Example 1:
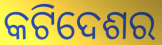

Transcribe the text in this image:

କଟିଦେଶର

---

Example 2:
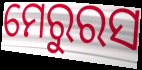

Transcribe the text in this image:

ମେରୁରସ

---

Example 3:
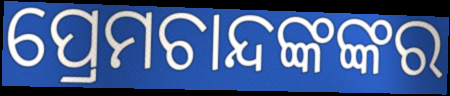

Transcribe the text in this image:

ପ୍ରେମଚାନ୍ଦଙ୍କଙ୍କର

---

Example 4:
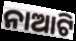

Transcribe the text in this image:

ନାଆଟି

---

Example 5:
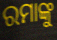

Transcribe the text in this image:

ରମାଙ୍କୁ